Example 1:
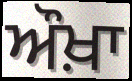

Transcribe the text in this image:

ਔਖ਼ਾ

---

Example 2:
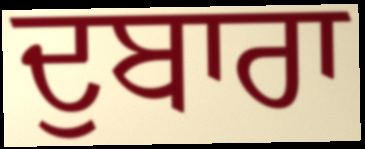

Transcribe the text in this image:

ਦੁਬਾਰਾ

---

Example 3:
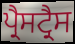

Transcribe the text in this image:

ਪ੍ਰੈਸਟ੍ਰੈਸ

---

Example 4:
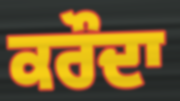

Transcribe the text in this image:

ਕਰੌਦਾ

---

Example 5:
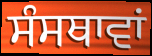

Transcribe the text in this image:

ਸੰਸਥਾਵਾਂ